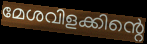
മേശവിളക്കിന്റെ